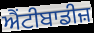
ਐਂਟੀਬਾਡੀਜ਼